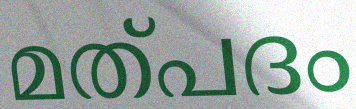
മത്പദം